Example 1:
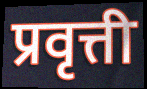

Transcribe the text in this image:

प्रवृत्ती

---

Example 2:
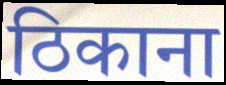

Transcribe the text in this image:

ठिकाना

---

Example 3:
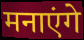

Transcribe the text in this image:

मनाएंगे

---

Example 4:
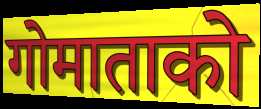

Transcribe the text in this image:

गोमाताको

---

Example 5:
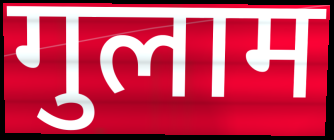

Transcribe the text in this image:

गुलाम